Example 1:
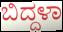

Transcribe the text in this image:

ಬಿದ್ದಳಾ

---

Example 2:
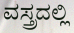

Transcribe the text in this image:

ವಸ್ತ್ರದಲ್ಲಿ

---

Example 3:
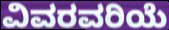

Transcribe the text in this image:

ವಿವರವರಿಯೆ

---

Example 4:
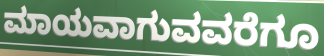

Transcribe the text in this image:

ಮಾಯವಾಗುವವರೆಗೂ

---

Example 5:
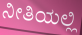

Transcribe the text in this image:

ನೀತಿಯಲ್ಲಿ